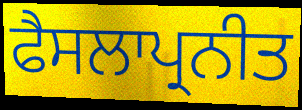
ਫੈਸਲਾਪ੍ਰਨੀਤ